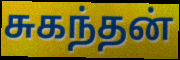
சுகந்தன்